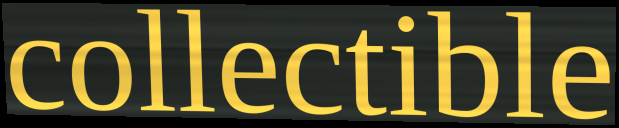
collectible